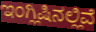
ಇಂಗ್ಲಿಷಿನಲ್ಲಿವೆ